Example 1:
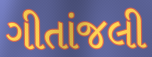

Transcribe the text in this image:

ગીતાંજલી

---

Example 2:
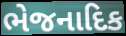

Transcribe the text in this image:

ભેજનાદિક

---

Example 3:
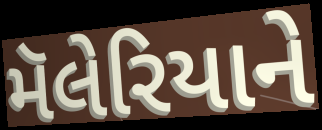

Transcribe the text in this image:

મૅલેરિયાને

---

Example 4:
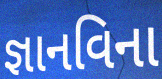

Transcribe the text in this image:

જ્ઞાનવિના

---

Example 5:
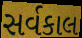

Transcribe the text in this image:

સર્વકાલ